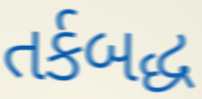
તર્કબદ્ધ